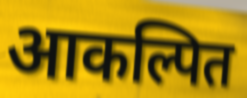
आकल्पित